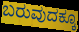
ಬರುವುದಕ್ಕೂ